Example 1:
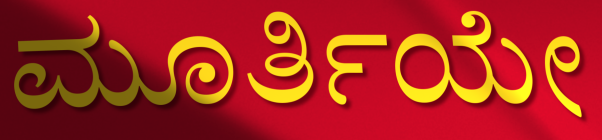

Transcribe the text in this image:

ಮೂರ್ತಿಯೇ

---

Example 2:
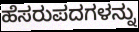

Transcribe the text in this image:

ಹೆಸರುಪದಗಳನ್ನು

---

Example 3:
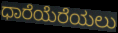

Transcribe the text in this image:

ಧಾರೆಯೆರೆಯಲು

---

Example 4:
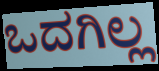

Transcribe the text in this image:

ಒದಗಿಲ್ಲ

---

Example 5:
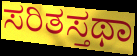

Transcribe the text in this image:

ಸರಿತಸ್ತಥಾ